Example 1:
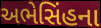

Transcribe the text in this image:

અભેસિંહના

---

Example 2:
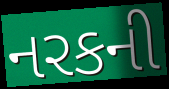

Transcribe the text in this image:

નરકની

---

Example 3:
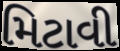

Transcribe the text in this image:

મિટાવી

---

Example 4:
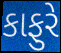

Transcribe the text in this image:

કાફુરે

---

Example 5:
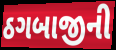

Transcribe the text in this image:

ઠગબાજીની